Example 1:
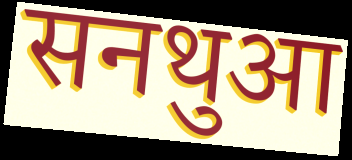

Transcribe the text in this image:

सनथुआ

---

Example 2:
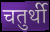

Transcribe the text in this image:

चतुर्थी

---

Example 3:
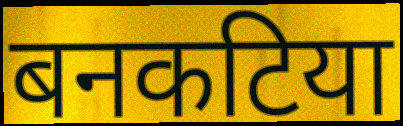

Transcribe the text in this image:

बनकटिया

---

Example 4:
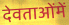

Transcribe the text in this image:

देवताओंमें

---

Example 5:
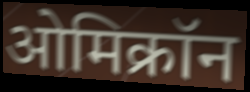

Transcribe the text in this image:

ओमिक्रॉन